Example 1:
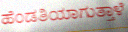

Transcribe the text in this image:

ಹೆಂಡತಿಯಾಗುತ್ತಾಳೆ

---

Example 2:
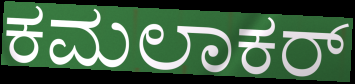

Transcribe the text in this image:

ಕಮಲಾಕರ್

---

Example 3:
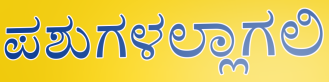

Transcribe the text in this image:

ಪಶುಗಳಲ್ಲಾಗಲಿ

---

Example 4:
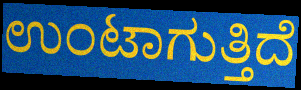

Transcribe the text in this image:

ಉಂಟಾಗುತ್ತಿದೆ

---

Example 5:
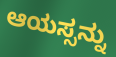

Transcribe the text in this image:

ಆಯಸ್ಸನ್ನು